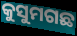
କୁସୁମଗଛ